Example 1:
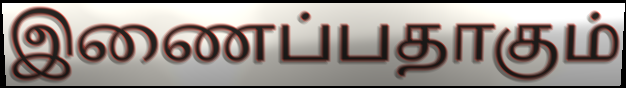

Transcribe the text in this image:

இணைப்பதாகும்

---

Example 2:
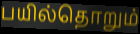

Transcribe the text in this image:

பயில்தொறும்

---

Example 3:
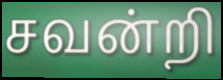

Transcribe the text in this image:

சவன்றி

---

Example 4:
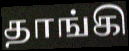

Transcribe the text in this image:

தாங்கி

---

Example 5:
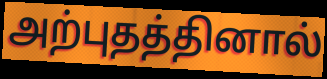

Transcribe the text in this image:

அற்புதத்தினால்